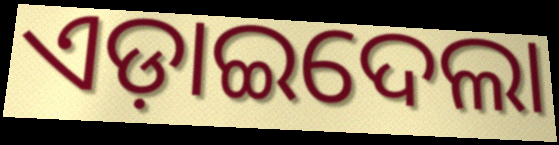
ଏଡ଼ାଇଦେଲା